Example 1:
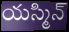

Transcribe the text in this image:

యస్మిన్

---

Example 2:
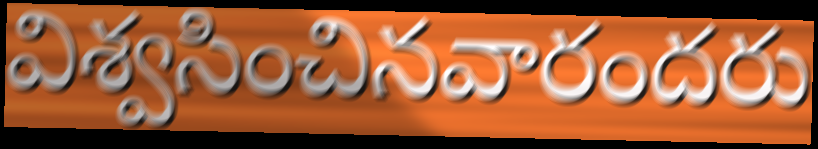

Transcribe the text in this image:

విశ్వసించినవారందరు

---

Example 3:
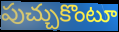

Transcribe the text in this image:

పుచ్చుకొంటూ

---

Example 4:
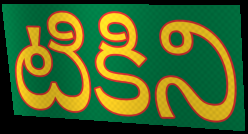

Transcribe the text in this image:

టికిని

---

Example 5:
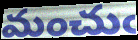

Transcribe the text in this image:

మంచుఁ